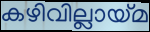
കഴിവില്ലായ്മ